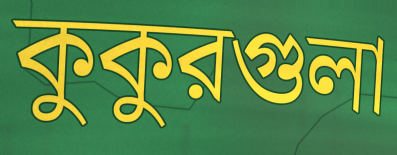
কুকুরগুলা